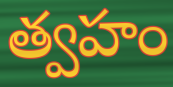
త్వహం